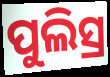
ପୁଲିସ୍ର